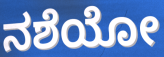
ನಶೆಯೋ